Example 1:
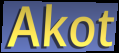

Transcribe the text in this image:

Akot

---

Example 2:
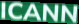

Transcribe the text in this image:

ICANN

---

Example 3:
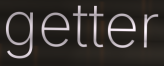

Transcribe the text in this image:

getter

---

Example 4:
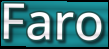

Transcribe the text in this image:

Faro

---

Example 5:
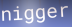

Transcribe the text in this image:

nigger